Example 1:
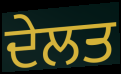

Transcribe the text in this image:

ਦੇਲਤ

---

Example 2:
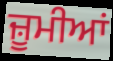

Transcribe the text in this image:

ਜ਼ੂਮੀਆਂ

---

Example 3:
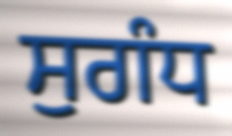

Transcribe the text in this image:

ਸੁਗੰਧ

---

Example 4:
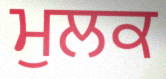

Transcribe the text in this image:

ਮੁਲਕ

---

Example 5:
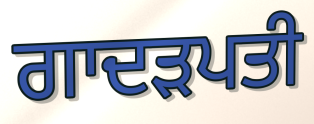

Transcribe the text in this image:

ਗਾਦੜਪਤੀ